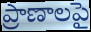
ప్రాణాలపై